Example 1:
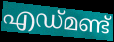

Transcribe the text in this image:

എഡ്മണ്ട്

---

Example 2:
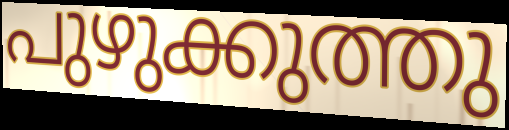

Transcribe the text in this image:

പുഴുക്കുത്തു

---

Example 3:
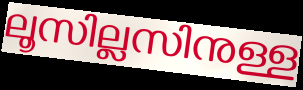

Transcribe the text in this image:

ലൂസില്ലസിനുള്ള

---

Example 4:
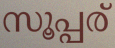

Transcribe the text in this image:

സൂപ്പര്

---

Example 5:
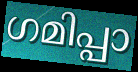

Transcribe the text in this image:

ഗമിപ്പാ